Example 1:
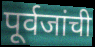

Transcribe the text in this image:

पूर्वजांची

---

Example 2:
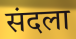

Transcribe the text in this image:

संदला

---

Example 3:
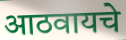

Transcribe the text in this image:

आठवायचे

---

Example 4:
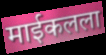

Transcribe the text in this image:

माईकलला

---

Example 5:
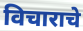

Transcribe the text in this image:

विचाराचे